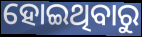
ହୋଇଥିବାରୁ